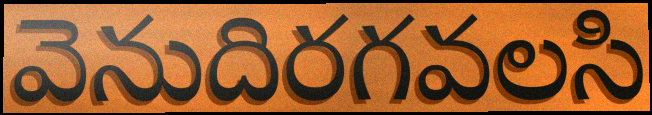
వెనుదిరగవలసి